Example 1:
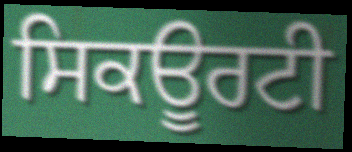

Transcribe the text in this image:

ਸਿਕਊਰਟੀ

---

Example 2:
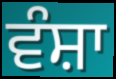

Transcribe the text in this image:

ਵੰਸ਼ਾ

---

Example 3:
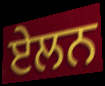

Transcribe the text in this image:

ਏਲਨ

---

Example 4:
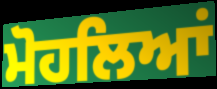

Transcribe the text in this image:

ਮੋਹਲਿਆਂ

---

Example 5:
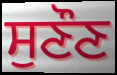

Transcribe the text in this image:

ਸੁਣੌਣ